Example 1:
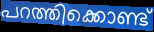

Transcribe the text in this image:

പറത്തിക്കൊണ്ട്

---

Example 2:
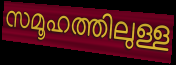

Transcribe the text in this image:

സമൂഹത്തിലുള്ള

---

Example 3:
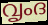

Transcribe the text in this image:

വൃംദ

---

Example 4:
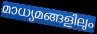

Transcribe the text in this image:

മാധ്യമങ്ങളിലും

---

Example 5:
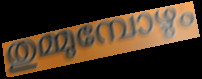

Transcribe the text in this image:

തുമ്മുമ്പോഴും